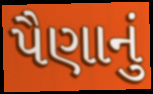
પૈણાનું